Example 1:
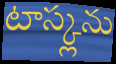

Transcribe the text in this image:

టాస్క్లను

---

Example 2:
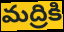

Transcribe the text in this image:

మద్రికి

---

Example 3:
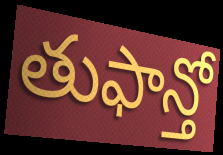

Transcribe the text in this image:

తుఫాన్తో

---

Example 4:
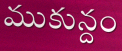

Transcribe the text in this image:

ముకున్దం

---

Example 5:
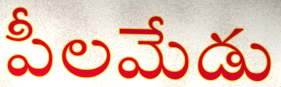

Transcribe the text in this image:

పీలమేడు